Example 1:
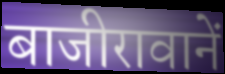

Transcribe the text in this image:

बाजीरावानें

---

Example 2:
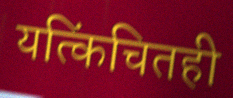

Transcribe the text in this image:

यत्किंचितही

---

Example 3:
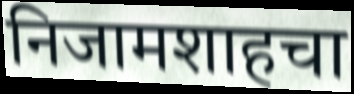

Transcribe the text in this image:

निजामशाहचा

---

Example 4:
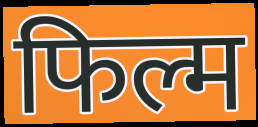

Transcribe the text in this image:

फिल्म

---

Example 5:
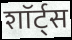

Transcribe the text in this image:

शॉर्ट्स